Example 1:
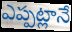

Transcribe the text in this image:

ఎప్పట్లానే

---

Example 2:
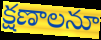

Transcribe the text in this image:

క్షణాలనూ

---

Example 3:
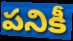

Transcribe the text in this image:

పనికీ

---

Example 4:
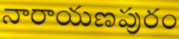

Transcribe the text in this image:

నారాయణపురం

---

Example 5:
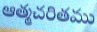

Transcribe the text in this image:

ఆత్మచరితము